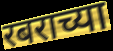
रबराच्या